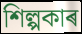
শিল্পকাৰ